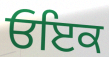
ਓਇਕ